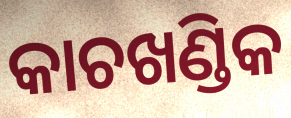
କାଚଖଣ୍ଡିକ